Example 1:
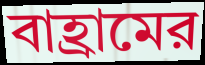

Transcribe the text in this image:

বাহ্রামের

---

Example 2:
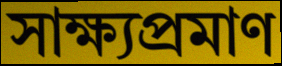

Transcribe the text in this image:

সাক্ষ্যপ্রমাণ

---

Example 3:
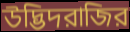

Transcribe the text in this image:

উদ্ভিদরাজির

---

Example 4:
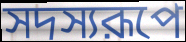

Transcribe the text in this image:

সদস্যরূপে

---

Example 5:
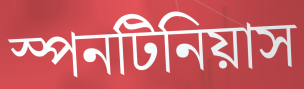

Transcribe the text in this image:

স্পনটিনিয়াস